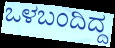
ಒಳಬಂದಿದ್ದ